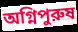
অগ্নিপুরুষ